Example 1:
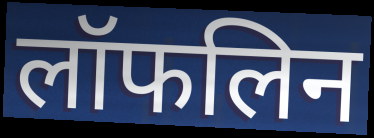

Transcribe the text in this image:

लॉफलिन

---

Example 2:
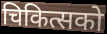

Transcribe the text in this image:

चिकित्सको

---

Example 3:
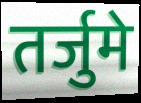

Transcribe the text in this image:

तर्जुमे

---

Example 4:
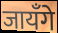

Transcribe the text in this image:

जायँगे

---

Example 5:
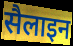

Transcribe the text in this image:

सैलाइन